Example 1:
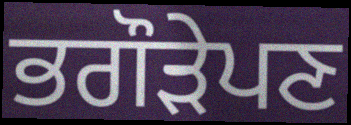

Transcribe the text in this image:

ਭਗੌੜੇਪਣ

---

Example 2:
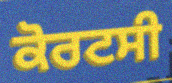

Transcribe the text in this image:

ਕੋਰਟਸੀ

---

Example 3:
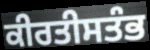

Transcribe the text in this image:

ਕੀਰਤੀਸਤੰਭ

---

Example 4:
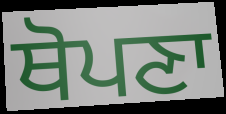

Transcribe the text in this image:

ਥੋਪਣਾ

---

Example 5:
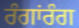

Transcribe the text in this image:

ਰੰਗਾਂਰੰਗ